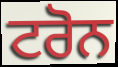
ਟਰੋਨ